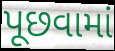
પૂછવામાં